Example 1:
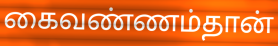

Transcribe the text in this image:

கைவண்ணம்தான்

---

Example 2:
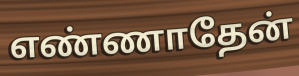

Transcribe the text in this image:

எண்ணாதேன்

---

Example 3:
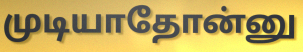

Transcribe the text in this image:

முடியாதோன்னு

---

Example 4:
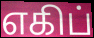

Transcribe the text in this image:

எகிப்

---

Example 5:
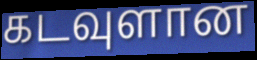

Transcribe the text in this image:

கடவுளான